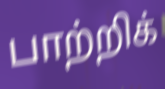
பாற்றிக்